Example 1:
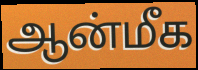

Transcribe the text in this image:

ஆன்மீக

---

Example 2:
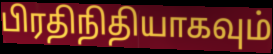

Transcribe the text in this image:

பிரதிநிதியாகவும்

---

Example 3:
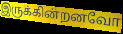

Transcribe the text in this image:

இருக்கின்றனவோ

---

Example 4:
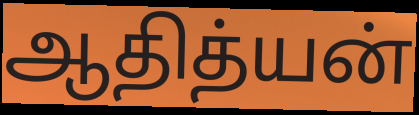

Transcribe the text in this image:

ஆதித்யன்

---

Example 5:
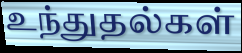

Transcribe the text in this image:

உந்துதல்கள்